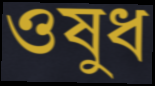
ওষুধ